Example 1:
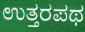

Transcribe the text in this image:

ಉತ್ತರಪಥ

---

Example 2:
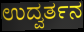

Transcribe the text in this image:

ಉದ್ವರ್ತನ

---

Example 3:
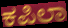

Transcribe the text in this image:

ಕಪಿಲಾ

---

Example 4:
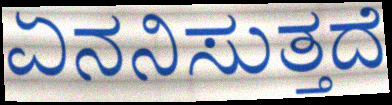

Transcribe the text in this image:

ಏನನಿಸುತ್ತದೆ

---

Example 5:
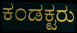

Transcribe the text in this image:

ಕಂಡಕ್ಟರು